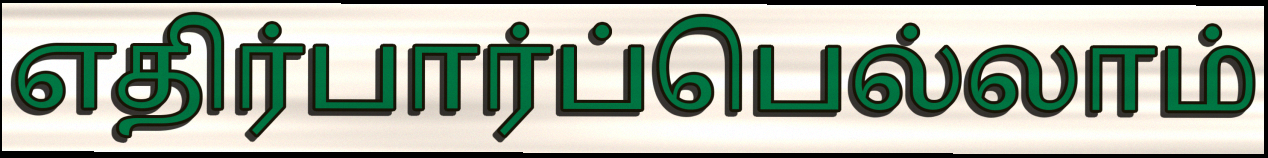
எதிர்பார்ப்பெல்லாம்